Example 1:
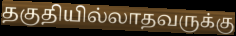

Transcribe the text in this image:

தகுதியில்லாதவருக்கு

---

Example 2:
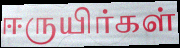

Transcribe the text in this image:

ஈருயிர்கள்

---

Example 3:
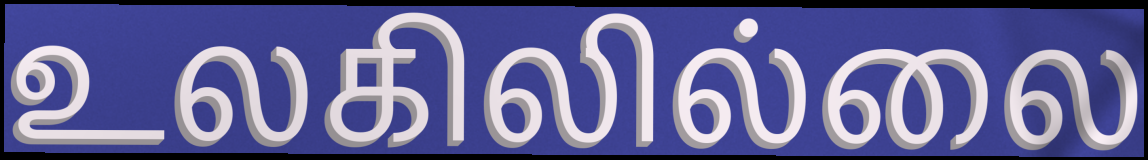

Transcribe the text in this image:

உலகிலில்லை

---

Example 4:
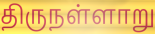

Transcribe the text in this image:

திருநள்ளாறு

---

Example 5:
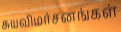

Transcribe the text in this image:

சுயவிமர்சனங்கள்